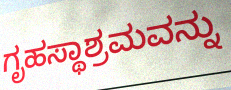
ಗೃಹಸ್ಥಾಶ್ರಮವನ್ನು